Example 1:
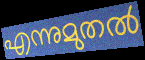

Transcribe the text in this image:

എന്നുമുതൽ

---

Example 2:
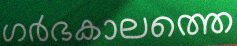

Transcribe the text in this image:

ഗർഭകാലത്തെ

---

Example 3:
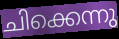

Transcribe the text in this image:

ചിക്കെന്നു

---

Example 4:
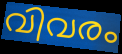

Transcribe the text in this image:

വിവരം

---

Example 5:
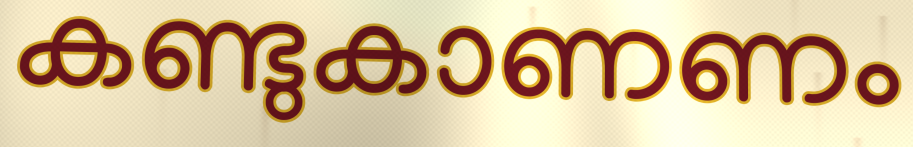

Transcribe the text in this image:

കണ്ടുകാണണം